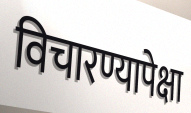
विचारण्यापेक्षा